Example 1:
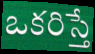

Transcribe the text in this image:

ఒకరిస్తే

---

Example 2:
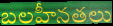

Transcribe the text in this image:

బలహీనతలు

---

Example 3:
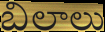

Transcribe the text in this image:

బిలాలు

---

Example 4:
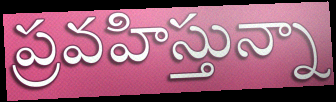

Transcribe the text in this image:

ప్రవహిస్తున్నా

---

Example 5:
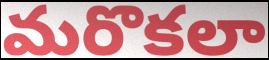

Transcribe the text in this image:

మరొకలా